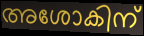
അശോകിന്